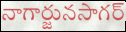
నాగార్జునసాగర్